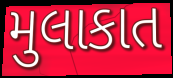
મુલાકાત